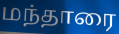
மந்தாரை